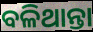
ବଳିଥାନ୍ତା